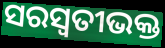
ସରସ୍ୱତୀଭକ୍ତ